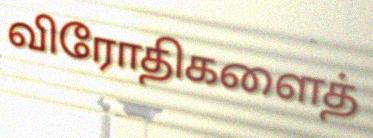
விரோதிகளைத்